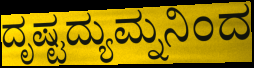
ದೃಷ್ಟದ್ಯುಮ್ನನಿಂದ